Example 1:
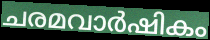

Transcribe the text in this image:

ചരമവാർഷികം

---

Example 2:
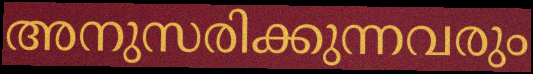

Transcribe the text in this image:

അനുസരിക്കുന്നവരും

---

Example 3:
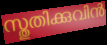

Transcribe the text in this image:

സ്തുതിക്കുവിൻ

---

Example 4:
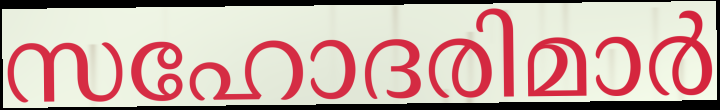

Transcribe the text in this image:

സഹോദരിമാർ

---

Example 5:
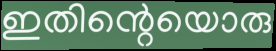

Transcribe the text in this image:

ഇതിന്റെയൊരു